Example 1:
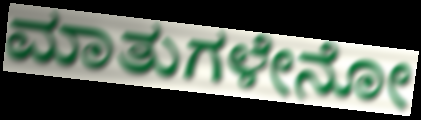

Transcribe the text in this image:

ಮಾತುಗಳೇನೋ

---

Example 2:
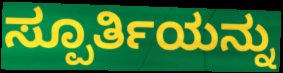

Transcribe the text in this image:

ಸ್ಪೂರ್ತಿಯನ್ನು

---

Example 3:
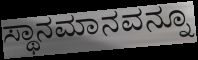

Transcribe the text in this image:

ಸ್ಥಾನಮಾನವನ್ನೂ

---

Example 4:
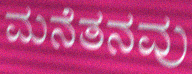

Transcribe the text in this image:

ಮನೆತನವು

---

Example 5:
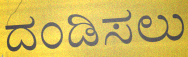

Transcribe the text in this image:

ದಂಡಿಸಲು